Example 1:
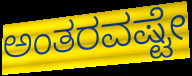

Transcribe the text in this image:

ಅಂತರವಷ್ಟೇ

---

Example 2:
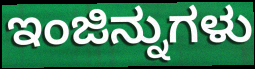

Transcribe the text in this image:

ಇಂಜಿನ್ನುಗಳು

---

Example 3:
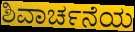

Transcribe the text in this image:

ಶಿವಾರ್ಚನೆಯ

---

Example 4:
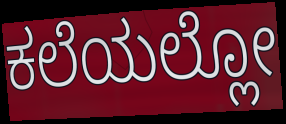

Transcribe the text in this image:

ಕಲೆಯಲ್ಲೋ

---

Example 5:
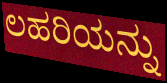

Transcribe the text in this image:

ಲಹರಿಯನ್ನು